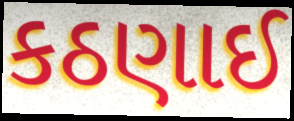
કઠણાઈ